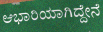
ಆಭಾರಿಯಾಗಿದ್ದೇನೆ